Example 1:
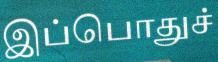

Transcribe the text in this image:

இப்பொதுச்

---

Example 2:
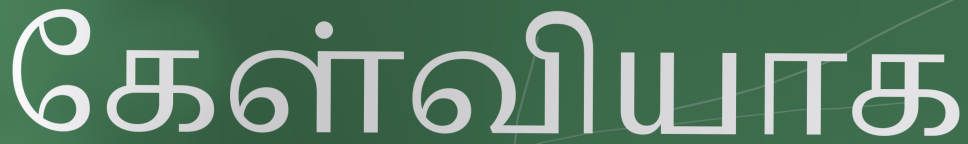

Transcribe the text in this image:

கேள்வியாக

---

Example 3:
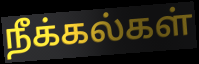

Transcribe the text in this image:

நீக்கல்கள்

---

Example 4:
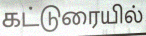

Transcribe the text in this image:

கட்டுரையில்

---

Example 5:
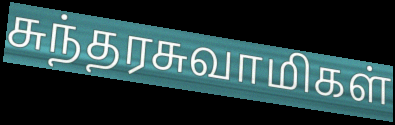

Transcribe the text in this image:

சுந்தரசுவாமிகள்